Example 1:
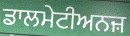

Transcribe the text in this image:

ਡਾਲਮੇਟੀਅਨਜ਼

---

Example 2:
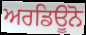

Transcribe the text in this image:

ਅਰਡਿਊਨੋ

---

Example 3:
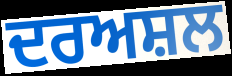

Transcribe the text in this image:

ਦਰਅਸ਼ਲ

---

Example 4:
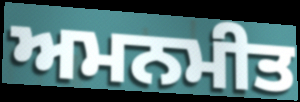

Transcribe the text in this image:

ਅਮਨਮੀਤ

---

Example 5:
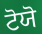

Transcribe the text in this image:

ਟੋਯੋ